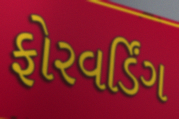
ફોરવર્ડિંગ